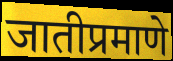
जातीप्रमाणे